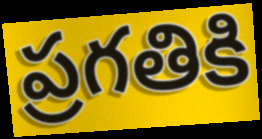
ప్రగతికి